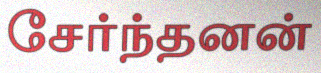
சேர்ந்தனன்